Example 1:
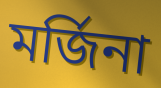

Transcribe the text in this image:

মর্জিনা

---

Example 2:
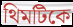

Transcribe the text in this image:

থিমটিকে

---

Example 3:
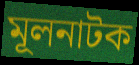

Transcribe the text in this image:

মূলনাটক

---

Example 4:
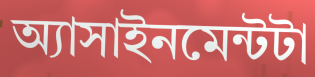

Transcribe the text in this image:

অ্যাসাইনমেন্টটা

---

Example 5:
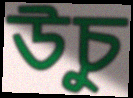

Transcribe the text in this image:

উচু